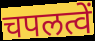
चपलत्वें